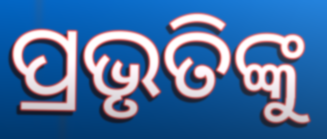
ପ୍ରଭୃତିଙ୍କୁ